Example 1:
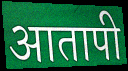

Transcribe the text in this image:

आतापी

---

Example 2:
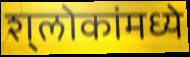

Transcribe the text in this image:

श्लोकांमध्ये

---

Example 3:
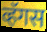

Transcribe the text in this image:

व्हॅगस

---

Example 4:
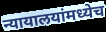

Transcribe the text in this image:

न्यायालयांमध्येच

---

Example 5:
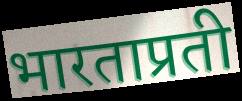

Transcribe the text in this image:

भारताप्रती